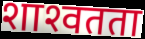
शाश्वतता